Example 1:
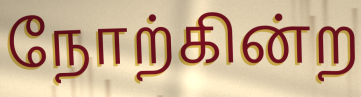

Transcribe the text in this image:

நோற்கின்ற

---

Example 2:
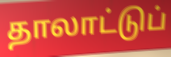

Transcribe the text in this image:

தாலாட்டுப்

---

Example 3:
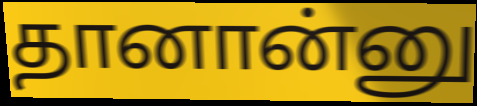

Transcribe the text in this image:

தானான்னு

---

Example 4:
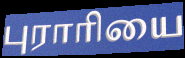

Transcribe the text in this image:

புராரியை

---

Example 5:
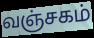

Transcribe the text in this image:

வஞ்சகம்